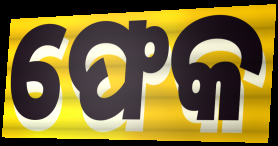
ଫେକ